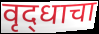
वृद्धाचा